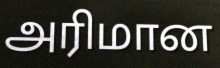
அரிமான